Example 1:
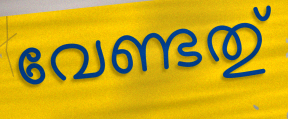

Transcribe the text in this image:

വേണ്ടതു്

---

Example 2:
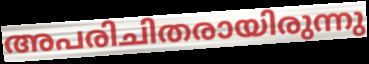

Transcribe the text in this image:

അപരിചിതരായിരുന്നു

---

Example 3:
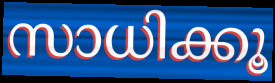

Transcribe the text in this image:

സാധിക്കൂ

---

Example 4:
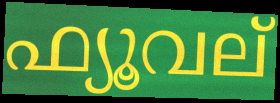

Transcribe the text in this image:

ഫ്യൂവല്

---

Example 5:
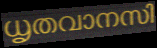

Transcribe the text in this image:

ധൃതവാനസി